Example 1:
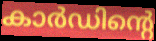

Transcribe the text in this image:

കാർഡിന്റെ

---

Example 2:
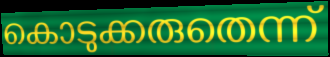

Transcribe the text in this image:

കൊടുക്കരുതെന്ന്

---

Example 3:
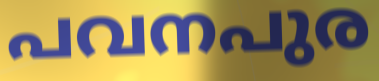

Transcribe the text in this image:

പവനപുര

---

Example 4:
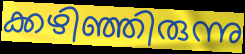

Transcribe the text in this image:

ക്കഴിഞ്ഞിരുന്നു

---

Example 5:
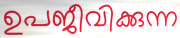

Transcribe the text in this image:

ഉപജീവിക്കുന്ന